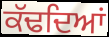
ਕੱਢਦਿਆਂ